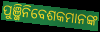
ପୁଞ୍ଜିନିବେଶକମାନଙ୍କ